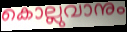
കൊല്ലുവാനും